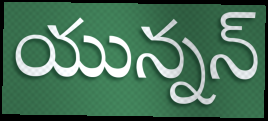
యున్నన్